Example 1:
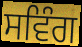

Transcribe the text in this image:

ਸਵਿੰਗ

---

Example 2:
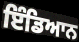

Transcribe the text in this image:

ਇੰਡਿਆਨ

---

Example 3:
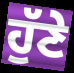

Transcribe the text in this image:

ਹੁੱਣੇ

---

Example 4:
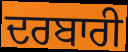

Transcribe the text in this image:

ਦਰਬਾਰੀ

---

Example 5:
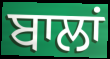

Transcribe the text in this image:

ਬਾਲਾਂ